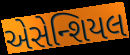
એસેન્શિયલ